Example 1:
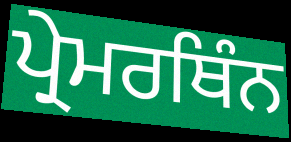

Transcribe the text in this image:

ਪ੍ਰੇਮਰਥਿੰਨ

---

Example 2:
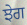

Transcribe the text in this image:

ਝੇਗ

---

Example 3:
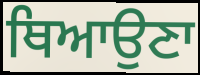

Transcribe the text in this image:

ਥਿਆਉਣਾ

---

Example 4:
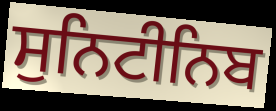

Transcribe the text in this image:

ਸੁਨਿਟੀਨਿਬ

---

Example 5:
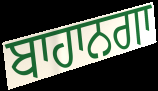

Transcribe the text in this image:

ਬਾਹਾਨਗਾ